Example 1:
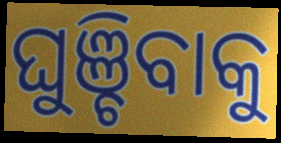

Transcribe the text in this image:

ଘୁଞ୍ଚିବାକୁ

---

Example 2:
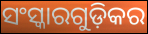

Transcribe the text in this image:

ସଂସ୍କାରଗୁଡ଼ିକର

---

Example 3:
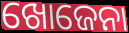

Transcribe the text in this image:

ଖୋଜେନା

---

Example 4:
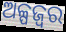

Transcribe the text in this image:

ଅଳ୍ପଜ୍ଵର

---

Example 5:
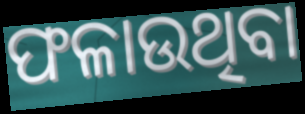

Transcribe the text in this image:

ଫଳାଉଥିବା